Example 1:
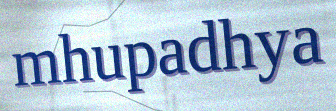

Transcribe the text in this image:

mhupadhya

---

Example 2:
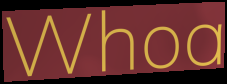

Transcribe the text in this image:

Whoa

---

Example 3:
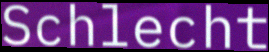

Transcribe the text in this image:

Schlecht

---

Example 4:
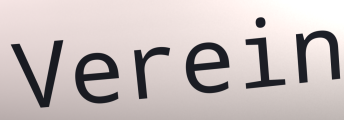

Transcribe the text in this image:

Verein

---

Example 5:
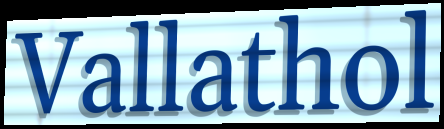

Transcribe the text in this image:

Vallathol